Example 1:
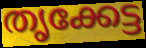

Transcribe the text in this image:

തൃക്കേട്ട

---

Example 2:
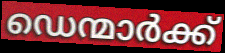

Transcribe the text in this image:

ഡെന്മാർക്ക്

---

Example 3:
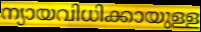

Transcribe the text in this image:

ന്യായവിധിക്കായുള്ള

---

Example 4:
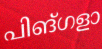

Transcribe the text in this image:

പിങ്ഗളാ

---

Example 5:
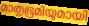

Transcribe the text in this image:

മാതൃഭൂമിയുമായി